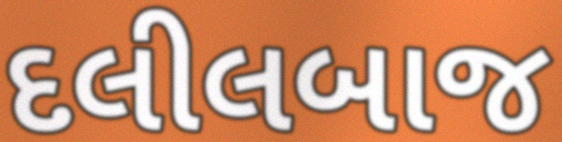
દલીલબાજ